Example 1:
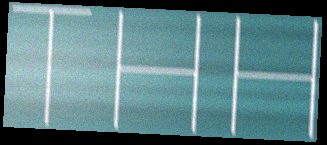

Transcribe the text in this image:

THH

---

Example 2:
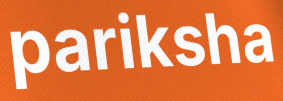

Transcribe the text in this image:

pariksha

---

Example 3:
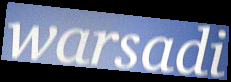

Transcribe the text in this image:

warsadi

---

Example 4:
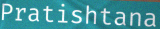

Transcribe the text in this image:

Pratishtana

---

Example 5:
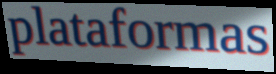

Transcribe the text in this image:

plataformas